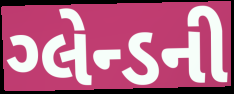
ગ્લેન્ડની